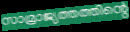
സാമ്രാജ്യത്തത്തിന്റെ